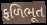
ફળિભૂત